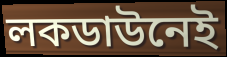
লকডাউনেই